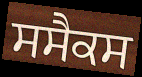
ਸਸੈਕਸ